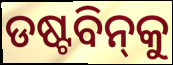
ଡଷ୍ଟବିନ୍‌କୁ